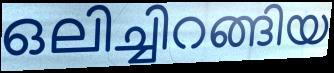
ഒലിച്ചിറങ്ങിയ